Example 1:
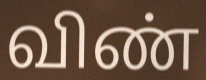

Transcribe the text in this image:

விண்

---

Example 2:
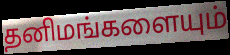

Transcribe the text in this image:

தனிமங்களையும்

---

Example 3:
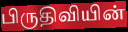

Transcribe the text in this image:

பிருதிவியின்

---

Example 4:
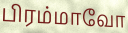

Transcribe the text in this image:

பிரம்மாவோ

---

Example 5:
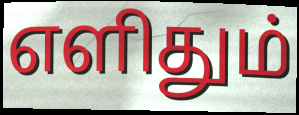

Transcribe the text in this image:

எளிதும்